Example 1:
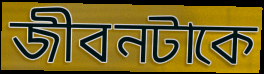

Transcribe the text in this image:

জীবনটাকে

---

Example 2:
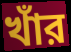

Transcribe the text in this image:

খাঁর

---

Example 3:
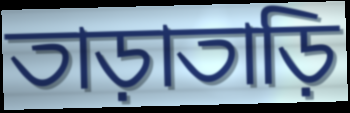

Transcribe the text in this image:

তাড়াতাড়ি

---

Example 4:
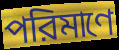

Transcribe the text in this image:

পরিমাণে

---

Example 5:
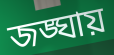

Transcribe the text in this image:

জঙ্ঘায়